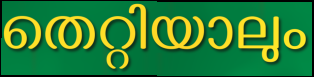
തെറ്റിയാലും